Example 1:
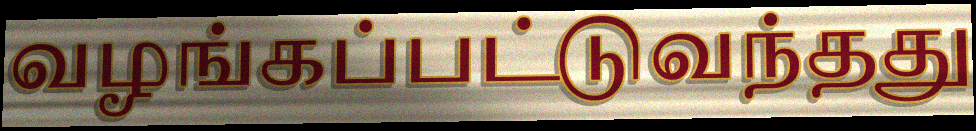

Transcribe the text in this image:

வழங்கப்பட்டுவந்தது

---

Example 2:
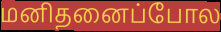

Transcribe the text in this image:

மனிதனைப்போல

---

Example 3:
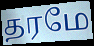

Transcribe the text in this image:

தரமே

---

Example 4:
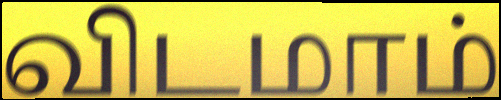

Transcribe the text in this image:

விடமாம்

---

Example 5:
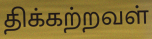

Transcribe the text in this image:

திக்கற்றவள்